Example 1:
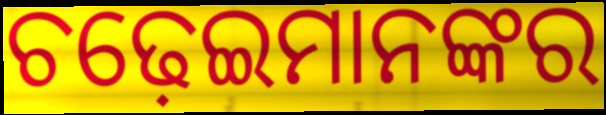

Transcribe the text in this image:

ଚଢ଼େଇମାନଙ୍କର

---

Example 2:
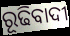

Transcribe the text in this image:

ରୂଢିବାଦୀ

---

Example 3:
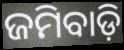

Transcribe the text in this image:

ଜମିବାଡ଼ି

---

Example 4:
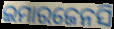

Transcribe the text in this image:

ଇମାରଜେନସି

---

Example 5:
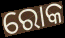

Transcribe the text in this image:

ରୋକ